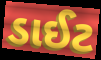
ડાઈટ